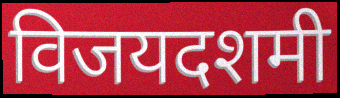
विजयदशमी